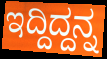
ಇದ್ದಿದ್ದನ್ನ